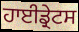
ਹਾਈਡ੍ਰੇਟਸ